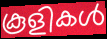
കൂളികൾ